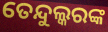
ତେନ୍ଦୁଲ୍କରଙ୍କ